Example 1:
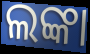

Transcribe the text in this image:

ଲଙ୍କା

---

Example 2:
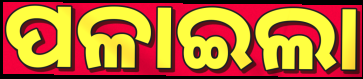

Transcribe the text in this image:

ପଳାଇଲା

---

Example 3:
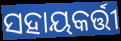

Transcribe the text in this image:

ସହାୟକର୍ତ୍ତୀ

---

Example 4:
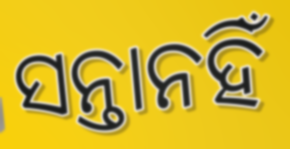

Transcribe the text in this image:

ସନ୍ତାନହିଁ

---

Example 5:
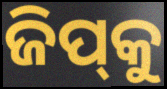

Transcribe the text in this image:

ଜିପ୍‍କୁ